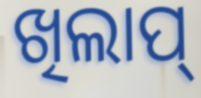
ଖିଲାପ୍